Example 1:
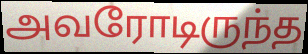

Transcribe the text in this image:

அவரோடிருந்த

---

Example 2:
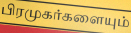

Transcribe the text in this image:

பிரமுகர்களையும்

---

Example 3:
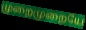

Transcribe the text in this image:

முறைமுறையே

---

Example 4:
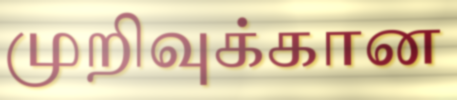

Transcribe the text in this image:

முறிவுக்கான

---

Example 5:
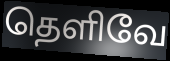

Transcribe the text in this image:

தெளிவே